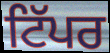
ਟਿੱਪਰ